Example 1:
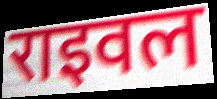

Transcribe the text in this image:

राइवल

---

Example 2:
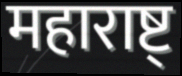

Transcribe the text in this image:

महाराष्ट्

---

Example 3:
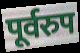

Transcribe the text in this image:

पूर्वरुप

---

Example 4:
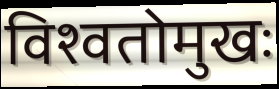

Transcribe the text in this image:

विश्वतोमुखः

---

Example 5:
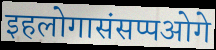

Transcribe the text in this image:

इहलोगासंसप्पओगे